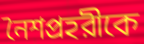
নৈশপ্রহরীকে